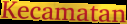
Kecamatan